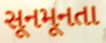
સૂનમૂનતા